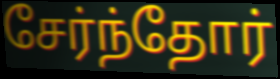
சேர்ந்தோர்